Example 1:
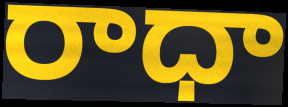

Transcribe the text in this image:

రాధా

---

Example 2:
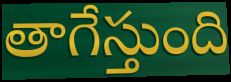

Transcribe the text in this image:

తాగేస్తుంది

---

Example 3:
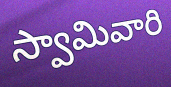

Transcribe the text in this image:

స్వామివారి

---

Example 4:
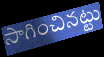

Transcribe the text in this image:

సాగించినట్టు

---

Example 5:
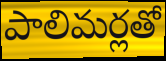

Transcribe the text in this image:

పాలిమర్లతో